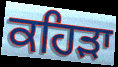
ਕਹਿੜਾ